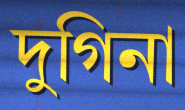
দুগিনা